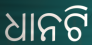
ଧାନଟି